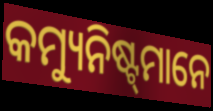
କମ୍ୟୁନିଷ୍ଟ୍‌ମାନେ